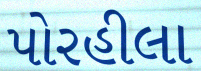
પોરહીલા